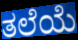
ತಲೆಯೆ